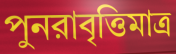
পুনরাবৃত্তিমাত্র